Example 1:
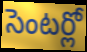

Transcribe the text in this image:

సెంటర్లో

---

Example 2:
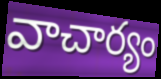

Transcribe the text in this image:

వాచార్యం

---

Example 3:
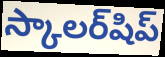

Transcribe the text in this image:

స్కాలర్‌షిప్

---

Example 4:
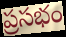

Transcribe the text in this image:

ప్రసభం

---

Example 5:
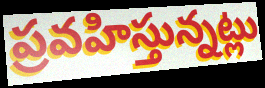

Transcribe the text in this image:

ప్రవహిస్తున్నట్లు